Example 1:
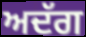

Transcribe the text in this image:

ਅਦੱਗ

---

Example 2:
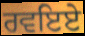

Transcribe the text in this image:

ਰਵਇਏ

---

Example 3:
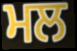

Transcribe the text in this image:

ਮਲ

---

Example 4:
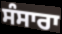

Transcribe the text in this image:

ਸੰਸਾਰਾ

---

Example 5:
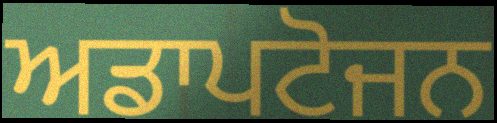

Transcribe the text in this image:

ਅਡਾਪਟੋਜਨ